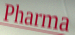
Pharma